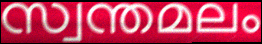
സ്വന്തമലം